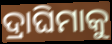
ଦ୍ରାଘିମାକୁ